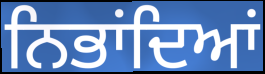
ਨਿਭਾਂਦਿਆਂ